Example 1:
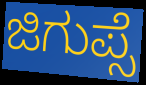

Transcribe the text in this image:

ಜಿಗುಪ್ಸೆ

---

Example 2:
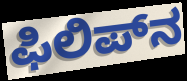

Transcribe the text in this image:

ಫಿಲಿಪ್‌ನ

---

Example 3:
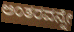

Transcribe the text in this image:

ಅಂತರವನ್ನೇ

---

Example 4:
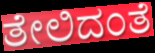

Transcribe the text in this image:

ತೇಲಿದಂತೆ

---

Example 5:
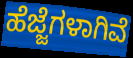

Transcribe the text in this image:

ಹೆಜ್ಜೆಗಳಾಗಿವೆ